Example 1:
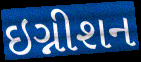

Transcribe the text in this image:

ઇગ્નીશન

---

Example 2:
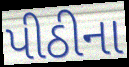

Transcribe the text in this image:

પીઠીના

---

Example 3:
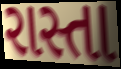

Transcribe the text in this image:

રાસ્તા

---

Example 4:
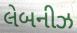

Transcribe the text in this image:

લેબનીઝ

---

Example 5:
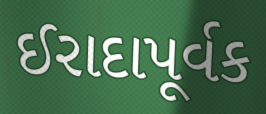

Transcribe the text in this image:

ઈરાદાપૂર્વક